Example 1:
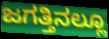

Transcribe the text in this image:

ಜಗತ್ತಿನಲ್ಲೂ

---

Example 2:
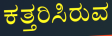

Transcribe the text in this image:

ಕತ್ತರಿಸಿರುವ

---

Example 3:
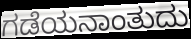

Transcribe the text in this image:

ಗಡೆಯನಾಂತುದು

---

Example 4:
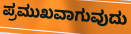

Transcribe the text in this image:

ಪ್ರಮುಖವಾಗುವುದು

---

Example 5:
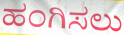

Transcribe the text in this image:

ಹಂಗಿಸಲು